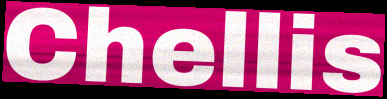
Chellis